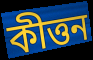
কীত্তন